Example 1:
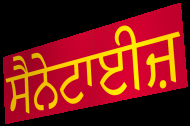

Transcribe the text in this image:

ਸੈਨੇਟਾਈਜ਼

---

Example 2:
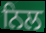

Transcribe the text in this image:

ਨਿਲ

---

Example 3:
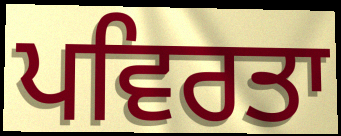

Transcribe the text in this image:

ਪਵਿਰਤਾ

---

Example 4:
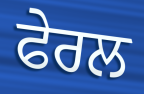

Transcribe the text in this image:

ਫੇਰਲ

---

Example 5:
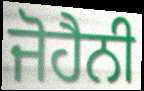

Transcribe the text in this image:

ਜੋਹੈਨੀ